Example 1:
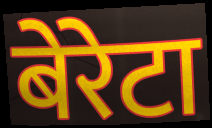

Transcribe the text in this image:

बेरेटा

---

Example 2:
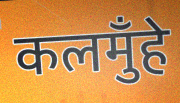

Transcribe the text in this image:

कलमुँहे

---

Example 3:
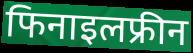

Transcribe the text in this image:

फिनाइलफ्रीन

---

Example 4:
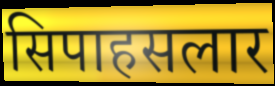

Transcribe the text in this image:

सिपाहसलार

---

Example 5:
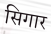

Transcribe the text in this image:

सिगार